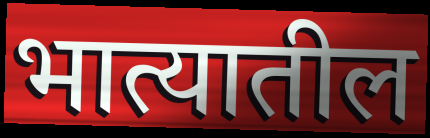
भात्यातील